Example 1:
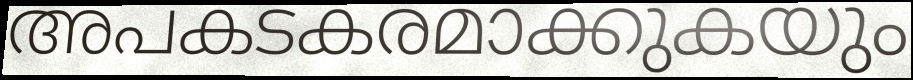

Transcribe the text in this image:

അപകടകരമാക്കുകയും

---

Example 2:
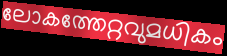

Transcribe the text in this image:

ലോകത്തേറ്റവുമധികം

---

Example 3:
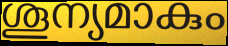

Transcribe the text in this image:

ശൂന്യമാകും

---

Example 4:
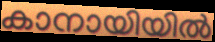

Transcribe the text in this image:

കാനായിയിൽ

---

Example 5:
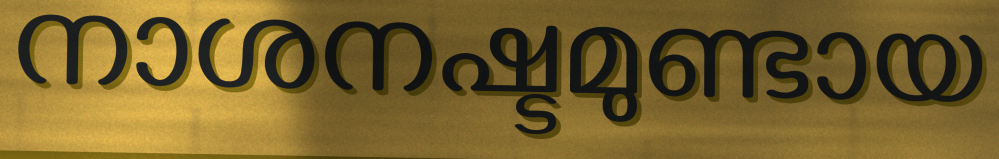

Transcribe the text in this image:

നാശനഷ്ടമുണ്ടായ